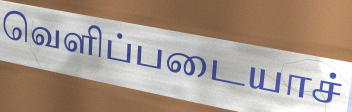
வெளிப்படையாச்